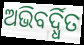
ଅଭିବର୍ଦ୍ଧିତ